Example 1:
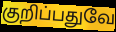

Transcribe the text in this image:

குறிப்பதுவே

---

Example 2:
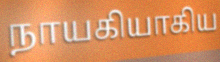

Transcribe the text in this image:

நாயகியாகிய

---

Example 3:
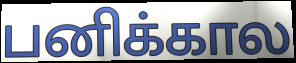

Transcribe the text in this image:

பனிக்கால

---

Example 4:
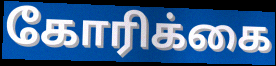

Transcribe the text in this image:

கோரிக்கை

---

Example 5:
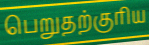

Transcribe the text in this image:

பெறுதற்குரிய